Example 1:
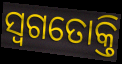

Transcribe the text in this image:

ସ୍ୱଗତୋକ୍ତି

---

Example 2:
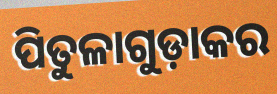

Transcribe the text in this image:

ପିତୁଳାଗୁଡ଼ାକର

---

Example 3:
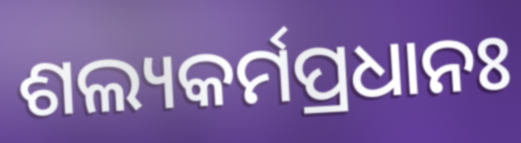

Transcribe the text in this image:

ଶଲ୍ୟକର୍ମପ୍ରଧାନଃ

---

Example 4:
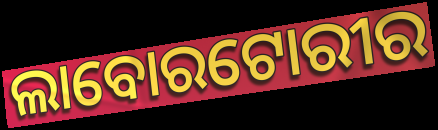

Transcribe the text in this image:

ଲାବୋରଟୋରୀର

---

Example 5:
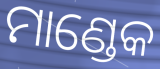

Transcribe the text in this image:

ମାଣ୍ଡେକ